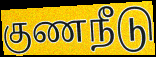
குணநீடு